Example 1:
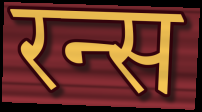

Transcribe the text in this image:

रन्स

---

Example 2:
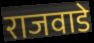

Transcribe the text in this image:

राजवाडे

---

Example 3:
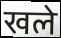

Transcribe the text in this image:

खले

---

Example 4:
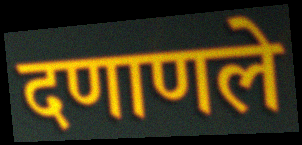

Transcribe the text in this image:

दणाणले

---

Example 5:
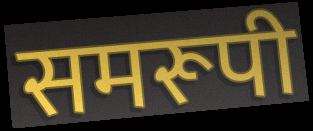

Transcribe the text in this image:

समरूपी